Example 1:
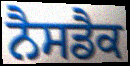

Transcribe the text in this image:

ਨੈਸਡੈਕ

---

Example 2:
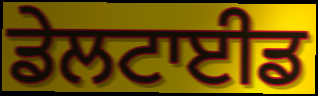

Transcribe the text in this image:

ਡੇਲਟਾਈਡ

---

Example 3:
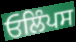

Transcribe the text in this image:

ਓਲਿੰਪਸ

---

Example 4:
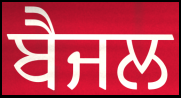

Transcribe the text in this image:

ਬੈਜਲ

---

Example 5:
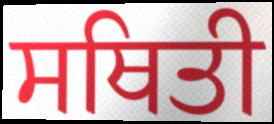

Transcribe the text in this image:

ਸਥਿਤੀ